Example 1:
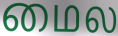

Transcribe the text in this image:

மைல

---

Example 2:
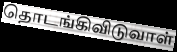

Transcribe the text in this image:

தொடங்கிவிடுவாள்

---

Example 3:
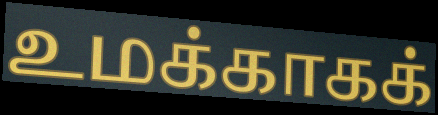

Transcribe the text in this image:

உமக்காகக்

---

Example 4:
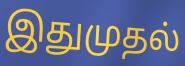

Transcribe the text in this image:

இதுமுதல்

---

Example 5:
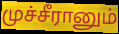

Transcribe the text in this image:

முச்சீரானும்